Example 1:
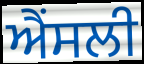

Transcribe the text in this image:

ਐਂਸਲੀ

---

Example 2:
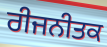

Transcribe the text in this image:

ਰੀਜਨੀਤਕ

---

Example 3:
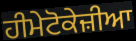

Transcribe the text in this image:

ਹੀਮੇਟੋਕੇਜ਼ੀਆ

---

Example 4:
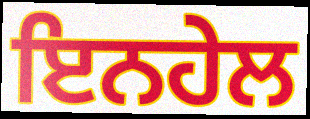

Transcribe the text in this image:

ਇਨਹੇਲ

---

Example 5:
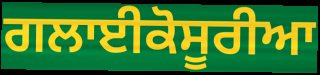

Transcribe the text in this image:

ਗਲਾਈਕੋਸੂਰੀਆ